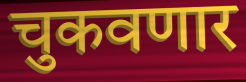
चुकवणार